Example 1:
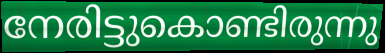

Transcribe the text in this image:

നേരിട്ടുകൊണ്ടിരുന്നു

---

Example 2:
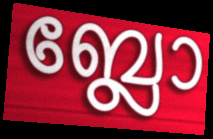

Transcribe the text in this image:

ബ്ലോ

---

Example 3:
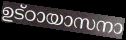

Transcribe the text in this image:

ഉട്ഠായാസനാ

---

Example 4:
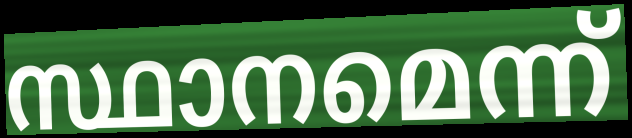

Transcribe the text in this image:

സ്ഥാനമെന്ന്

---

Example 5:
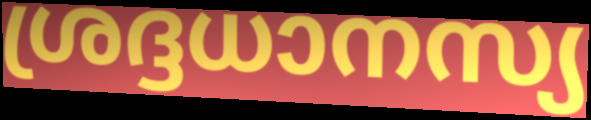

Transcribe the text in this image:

ശ്രദ്ദധാനസ്യ